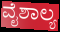
ವೈಶಾಲ್ಯ